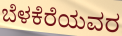
ಬೆಳಕೆರೆಯವರ